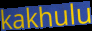
kakhulu